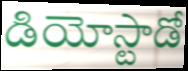
డియోస్టాడో